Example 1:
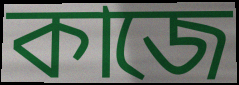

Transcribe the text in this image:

কাজে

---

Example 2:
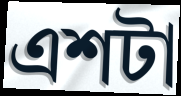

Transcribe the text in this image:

এশটা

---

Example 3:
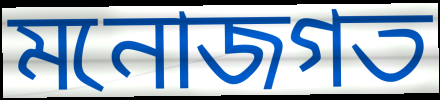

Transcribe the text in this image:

মনোজগত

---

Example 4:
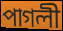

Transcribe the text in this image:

পাগলী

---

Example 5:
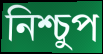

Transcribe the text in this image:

নিশ্চুপ